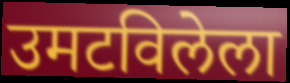
उमटविलेला